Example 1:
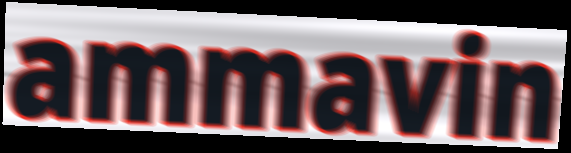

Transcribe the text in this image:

ammavin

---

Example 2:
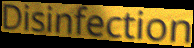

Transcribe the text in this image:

Disinfection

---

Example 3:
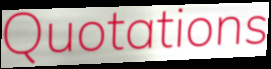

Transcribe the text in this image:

Quotations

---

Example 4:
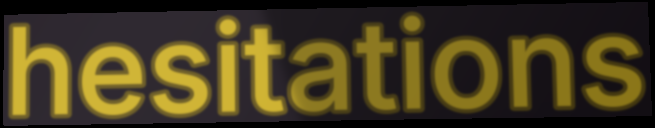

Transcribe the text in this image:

hesitations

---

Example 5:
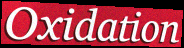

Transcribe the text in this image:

Oxidation